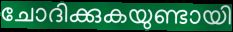
ചോദിക്കുകയുണ്ടായി